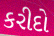
કરીદો